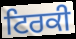
ਟਿਰਕੀ